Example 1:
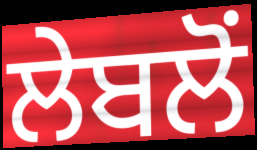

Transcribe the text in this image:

ਲੇਬਲੋਂ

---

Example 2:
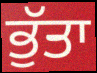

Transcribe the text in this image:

ਭੁੱਤਾ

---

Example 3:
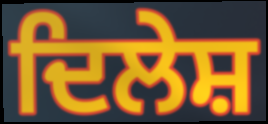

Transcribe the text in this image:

ਦਿਲੇਸ਼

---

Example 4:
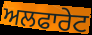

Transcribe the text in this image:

ਅਲਫਾਰੇਟ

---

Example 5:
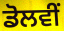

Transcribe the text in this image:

ਡੋਲਵੀਂ